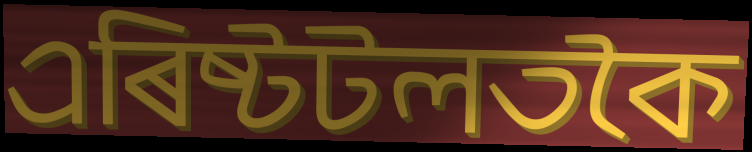
এৰিষ্টটলতকৈ